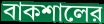
বাকশালের